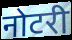
नोटरी